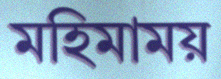
মহিমাময়